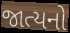
જાત્યનો